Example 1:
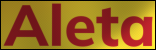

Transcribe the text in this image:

Aleta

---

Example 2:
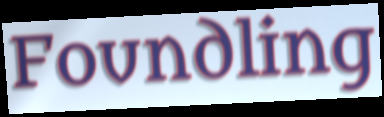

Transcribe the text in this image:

Foundling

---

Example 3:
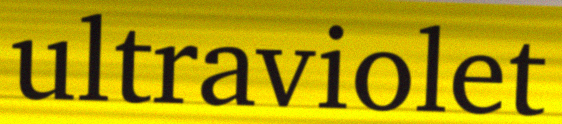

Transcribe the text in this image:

ultraviolet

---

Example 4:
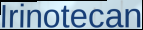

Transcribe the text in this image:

Irinotecan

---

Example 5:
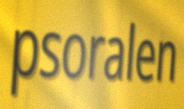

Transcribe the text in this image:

psoralen